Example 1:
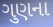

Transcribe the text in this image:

ગુણના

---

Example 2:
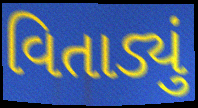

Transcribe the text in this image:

વિતાડ્યું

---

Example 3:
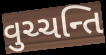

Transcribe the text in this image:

વુચ્ચન્તિ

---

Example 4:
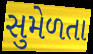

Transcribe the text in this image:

સુમેળતા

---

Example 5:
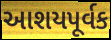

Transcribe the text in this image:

આશયપૂર્વક